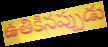
ఉతికినప్పుడు